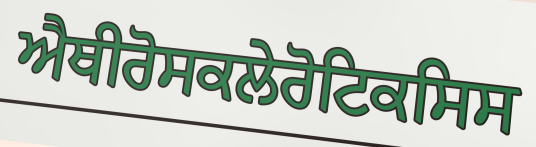
ਐਥੀਰੋਸਕਲੇਰੋਟਿਕਸਿਸ